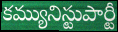
కమ్యునిస్టుపార్టీ